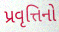
પ્રવૃત્તિનો